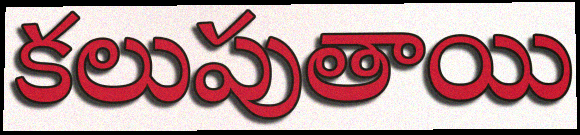
కలుపుతాయి